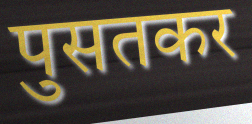
पुसतकर